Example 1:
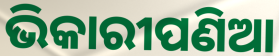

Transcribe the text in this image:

ଭିକାରୀପଣିଆ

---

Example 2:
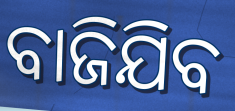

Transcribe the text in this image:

ବାଜିଯିବ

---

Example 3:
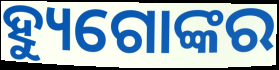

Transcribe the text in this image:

ହ୍ୟୁଗୋଙ୍କର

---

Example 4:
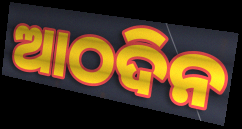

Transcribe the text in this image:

ଆଠଦିନ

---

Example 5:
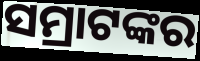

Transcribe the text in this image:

ସମ୍ରାଟଙ୍କର